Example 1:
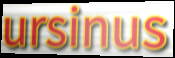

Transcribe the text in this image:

ursinus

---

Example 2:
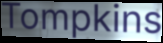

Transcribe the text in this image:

Tompkins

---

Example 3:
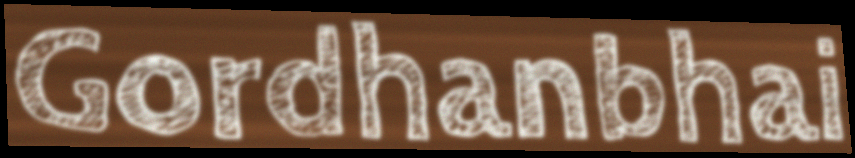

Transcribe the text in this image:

Gordhanbhai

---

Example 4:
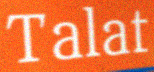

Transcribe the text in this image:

Talat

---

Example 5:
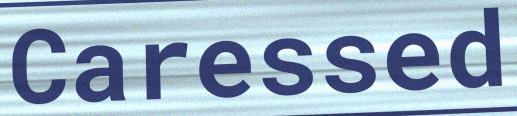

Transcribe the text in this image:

Caressed